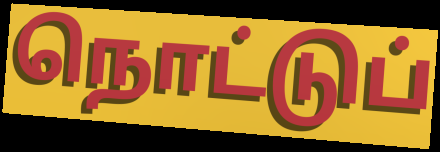
நொட்டுப்